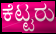
ಕೆಟ್ಟರು